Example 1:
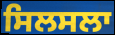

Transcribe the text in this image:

ਸਿਲਸਲਾ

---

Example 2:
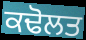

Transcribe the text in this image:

ਕਢੋਲਤ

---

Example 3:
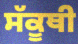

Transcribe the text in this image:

ਸੱਕੂਥੀ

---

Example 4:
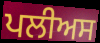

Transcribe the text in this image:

ਪਲੀਅਸ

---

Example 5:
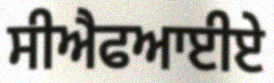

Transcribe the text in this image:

ਸੀਐਫਆਈਏ